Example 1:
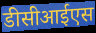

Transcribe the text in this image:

डीसीआईएस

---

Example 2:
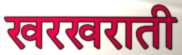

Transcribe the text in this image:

खरखराती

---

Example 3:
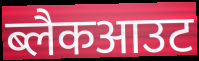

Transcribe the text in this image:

ब्लैकआउट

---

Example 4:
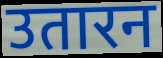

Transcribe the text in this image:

उतारन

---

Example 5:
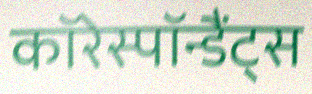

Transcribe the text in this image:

कॉरेस्पॉन्डैंट्स